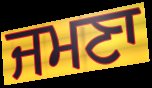
ਜਮਣਾ